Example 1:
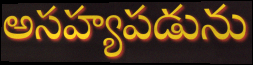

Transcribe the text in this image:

అసహ్యపడును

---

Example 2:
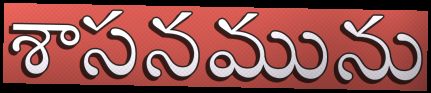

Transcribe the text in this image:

శాసనమును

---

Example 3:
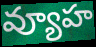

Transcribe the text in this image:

వ్యూహ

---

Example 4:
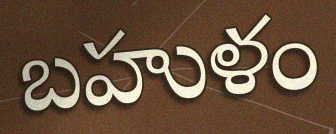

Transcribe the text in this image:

బహుళం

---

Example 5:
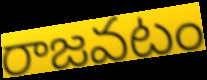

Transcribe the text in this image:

రాజవటం